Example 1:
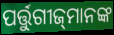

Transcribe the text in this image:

ପର୍ତ୍ତୁଗୀଜ୍‌ମାନଙ୍କ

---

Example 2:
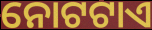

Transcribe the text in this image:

ନୋଟଟାଏ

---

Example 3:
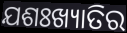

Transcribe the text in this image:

ଯଶଃଖ୍ୟାତିର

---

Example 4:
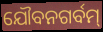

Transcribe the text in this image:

ଯୌବନଗର୍ବମ୍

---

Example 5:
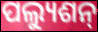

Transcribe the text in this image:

ପଲ୍ୟୁଶନ୍